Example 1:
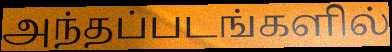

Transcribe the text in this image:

அந்தப்படங்களில்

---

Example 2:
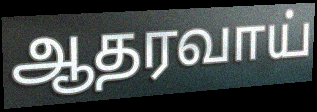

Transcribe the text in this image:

ஆதரவாய்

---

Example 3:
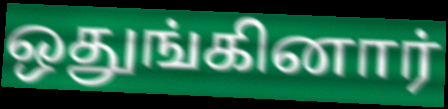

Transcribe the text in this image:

ஒதுங்கினார்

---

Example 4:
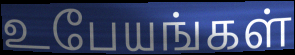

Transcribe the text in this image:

உபேயங்கள்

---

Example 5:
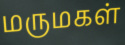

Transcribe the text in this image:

மருமகள்